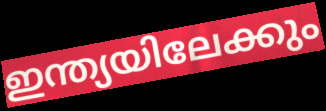
ഇന്ത്യയിലേക്കും